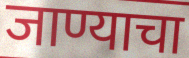
जाण्याचा